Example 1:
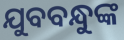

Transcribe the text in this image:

ଯୁବବନ୍ଧୁଙ୍କ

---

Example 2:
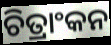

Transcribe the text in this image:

ଚିତ୍ରାଂକନ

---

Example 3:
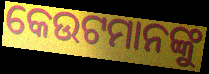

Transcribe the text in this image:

କେଉଟମାନଙ୍କୁ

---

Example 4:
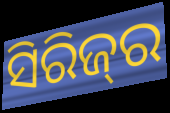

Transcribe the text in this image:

ସିରିଜ୍‌ର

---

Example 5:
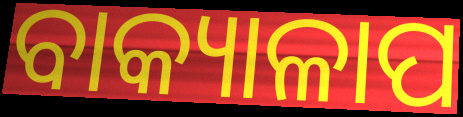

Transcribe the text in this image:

ବାକ୍ୟାଳାପ